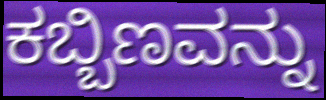
ಕಬ್ಬಿಣವನ್ನು